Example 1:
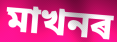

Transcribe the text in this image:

মাখনৰ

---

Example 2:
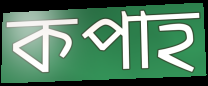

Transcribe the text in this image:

কপাহ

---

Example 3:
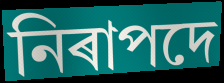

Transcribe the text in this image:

নিৰাপদে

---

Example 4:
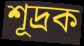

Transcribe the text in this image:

শূদ্ৰক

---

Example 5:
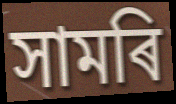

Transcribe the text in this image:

সামৰি